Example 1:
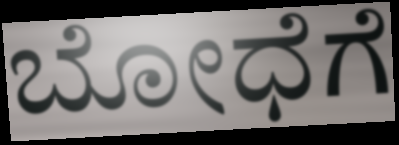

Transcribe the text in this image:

ಬೋಧೆಗೆ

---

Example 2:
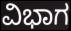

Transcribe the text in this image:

ವಿಭಾಗ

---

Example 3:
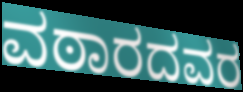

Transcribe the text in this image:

ವಠಾರದವರ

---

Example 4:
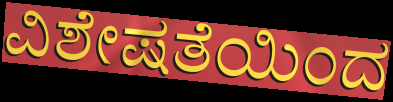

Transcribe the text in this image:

ವಿಶೇಷತೆಯಿಂದ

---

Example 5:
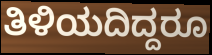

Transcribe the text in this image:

ತಿಳಿಯದಿದ್ದರೂ